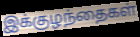
இக்குழந்தைகள்